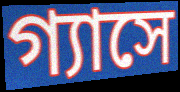
গ্যাসে